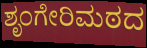
ಶೃಂಗೇರಿಮಠದ